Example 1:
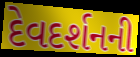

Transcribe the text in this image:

દેવદર્શનની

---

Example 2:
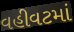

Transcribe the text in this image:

વહીવટમાં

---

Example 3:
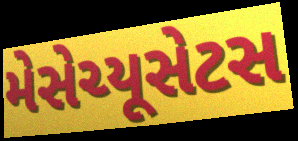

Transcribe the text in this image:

મેસેચ્યૂસેટસ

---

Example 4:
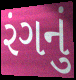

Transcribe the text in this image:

રંગનું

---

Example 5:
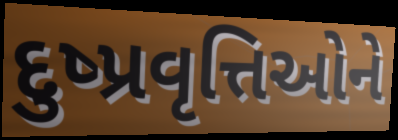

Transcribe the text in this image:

દુષ્પ્રવૃત્તિઓને